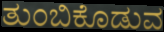
ತುಂಬಿಕೊಡುವ